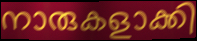
നാരുകളാക്കി